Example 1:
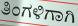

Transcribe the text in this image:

ತಿಂಗಳಿಗಾಗಿ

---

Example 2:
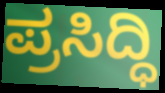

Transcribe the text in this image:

ಪ್ರಸಿದ್ಧಿ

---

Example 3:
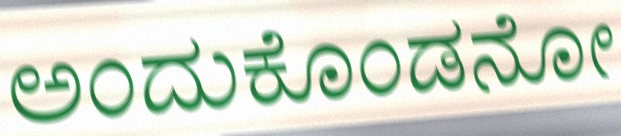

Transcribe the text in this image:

ಅಂದುಕೊಂಡನೋ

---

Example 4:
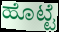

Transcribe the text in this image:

ಹೊಟ್ಟೆ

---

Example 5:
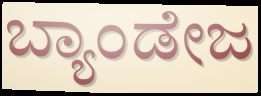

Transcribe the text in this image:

ಬ್ಯಾಂಡೇಜ